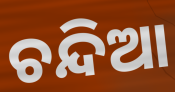
ଚନ୍ଦିଆ